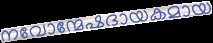
നവോന്മേഷദായകമായ